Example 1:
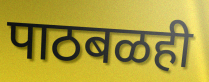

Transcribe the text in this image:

पाठबळही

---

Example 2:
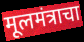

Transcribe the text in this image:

मूलमंत्राचा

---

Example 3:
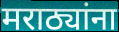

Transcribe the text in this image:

मराठ्यांना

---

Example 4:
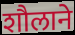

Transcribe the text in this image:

शौलाने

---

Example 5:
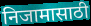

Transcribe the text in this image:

निजामासाठी